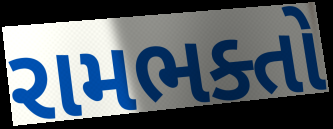
રામભક્તો